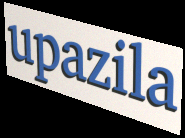
upazila